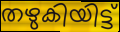
തഴുകിയിട്ട്